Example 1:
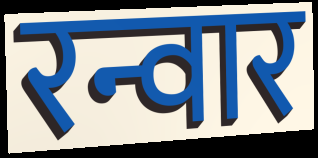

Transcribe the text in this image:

रन्वार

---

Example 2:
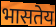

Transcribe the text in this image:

भासतेय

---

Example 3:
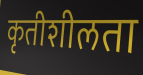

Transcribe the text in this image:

कृतीशीलता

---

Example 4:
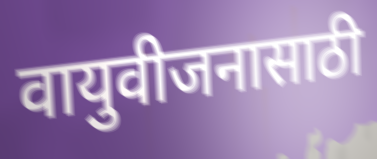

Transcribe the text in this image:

वायुवीजनासाठी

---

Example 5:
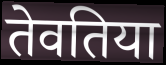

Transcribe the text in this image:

तेवतिया